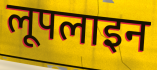
लूपलाइन